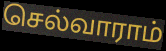
செல்வாராம்